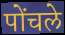
पोंचले